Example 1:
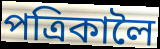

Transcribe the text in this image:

পত্ৰিকালৈ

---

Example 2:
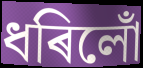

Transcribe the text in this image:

ধৰিলোঁ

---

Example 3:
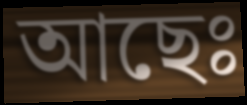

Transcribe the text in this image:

আছেঃ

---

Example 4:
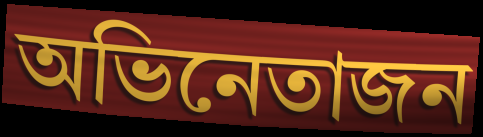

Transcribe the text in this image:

অভিনেতাজন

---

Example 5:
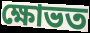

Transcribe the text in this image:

ক্ষোভত